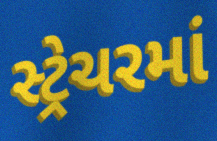
સ્ટ્રેચરમાં